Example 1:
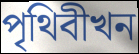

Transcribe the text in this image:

পৃথিবীখন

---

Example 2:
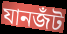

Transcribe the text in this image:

যানজঁট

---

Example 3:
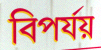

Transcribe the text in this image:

বিপৰ্যয়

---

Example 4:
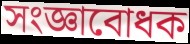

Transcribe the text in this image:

সংজ্ঞাবোধক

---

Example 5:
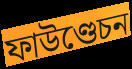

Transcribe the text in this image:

ফাউণ্ডেচন